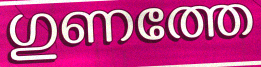
ഗുണത്തേ